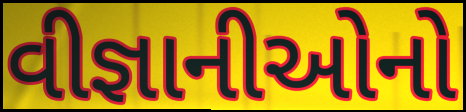
વીજ્ઞાનીઓનો